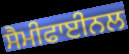
ਸੈਮੀਫਾਈਨਲ